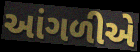
આંગળીએ